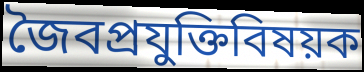
জৈবপ্রযুক্তিবিষয়ক